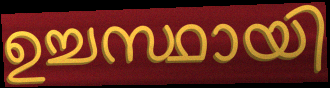
ഉച്ചസ്ഥായി